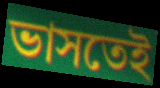
ভাসতেই